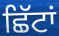
ਛਿੱਟਾਂ